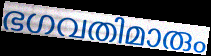
ഭഗവതിമാരും